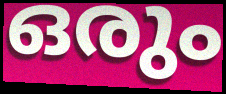
ഒരും